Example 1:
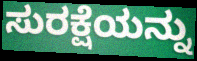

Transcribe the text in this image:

ಸುರಕ್ಷೆಯನ್ನು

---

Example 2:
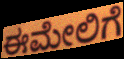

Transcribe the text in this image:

ಈಮೇಲಿಗೆ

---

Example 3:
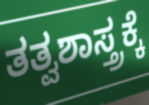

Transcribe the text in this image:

ತತ್ವಶಾಸ್ತ್ರಕ್ಕೆ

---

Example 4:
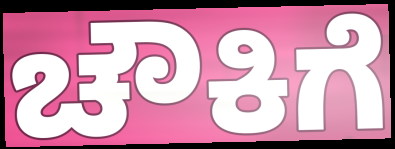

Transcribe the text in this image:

ಚೌಕಿಗೆ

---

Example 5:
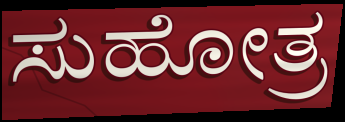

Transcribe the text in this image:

ಸುಹೋತ್ರ